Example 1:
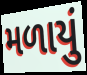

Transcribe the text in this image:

મળાયું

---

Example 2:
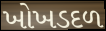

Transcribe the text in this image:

ખોખડદળ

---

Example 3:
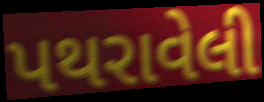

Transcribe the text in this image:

પથરાવેલી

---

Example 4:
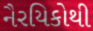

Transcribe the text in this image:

નૈરયિકોથી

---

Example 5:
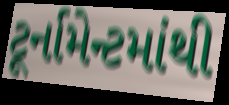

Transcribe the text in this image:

ટૂર્નામેન્ટમાંથી